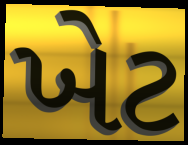
ખેટ